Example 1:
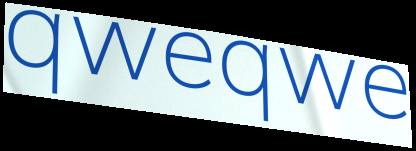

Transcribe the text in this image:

qweqwe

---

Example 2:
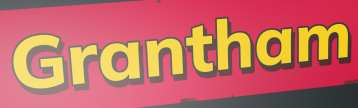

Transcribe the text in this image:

Grantham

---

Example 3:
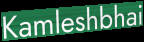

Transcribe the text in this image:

Kamleshbhai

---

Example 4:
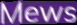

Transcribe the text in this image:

Mews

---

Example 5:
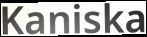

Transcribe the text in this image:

Kaniska